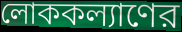
লোককল্যাণের